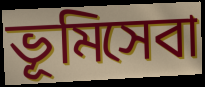
ভূমিসেবা